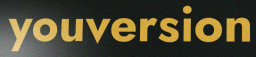
youversion